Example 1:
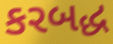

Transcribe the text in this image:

કરબદ્ધ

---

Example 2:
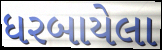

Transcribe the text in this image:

ધરબાયેલા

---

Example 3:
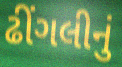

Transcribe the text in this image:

ઢીંગલીનું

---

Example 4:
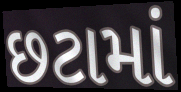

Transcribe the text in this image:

છટામાં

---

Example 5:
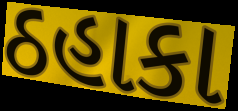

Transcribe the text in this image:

ઠહાકા